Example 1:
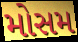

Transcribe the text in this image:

મોસમ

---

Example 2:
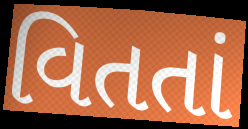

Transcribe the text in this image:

વિતતાં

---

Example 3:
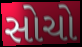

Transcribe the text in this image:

સોચો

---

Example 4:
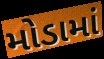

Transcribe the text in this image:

મોડામાં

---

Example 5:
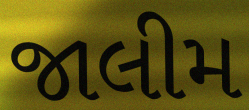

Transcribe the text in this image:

જાલીમ